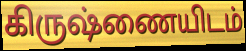
கிருஷ்ணையிடம்